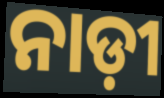
ନାଡ଼ୀ